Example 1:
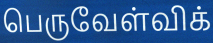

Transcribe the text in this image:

பெருவேள்விக்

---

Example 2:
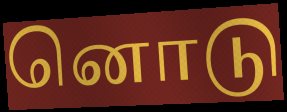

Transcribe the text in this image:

னொடு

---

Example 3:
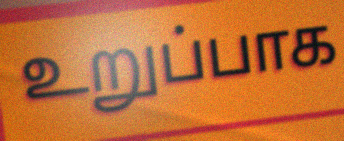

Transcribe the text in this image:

உறுப்பாக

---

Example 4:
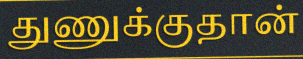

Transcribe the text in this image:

துணுக்குதான்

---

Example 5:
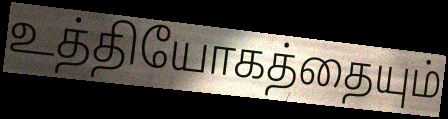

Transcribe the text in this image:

உத்தியோகத்தையும்